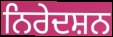
ਨਿਰੇਦਸ਼ਨ